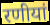
रणीयां